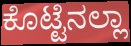
ಕೊಟ್ಟೆನಲ್ಲಾ